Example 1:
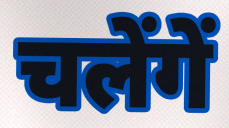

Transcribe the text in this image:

चलेंगें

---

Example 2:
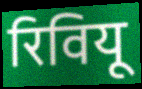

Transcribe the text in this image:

रिवियू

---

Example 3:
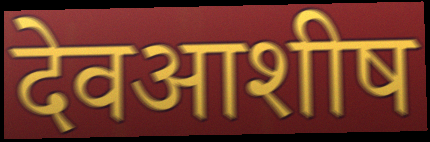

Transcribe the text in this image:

देवआशीष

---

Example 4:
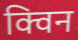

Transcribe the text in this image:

क्विन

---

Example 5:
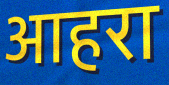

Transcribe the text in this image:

आहरा